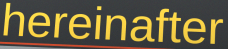
hereinafter